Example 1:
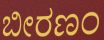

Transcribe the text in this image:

ಬೀರಣಂ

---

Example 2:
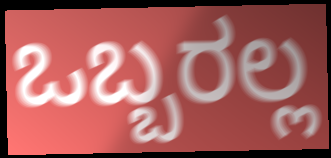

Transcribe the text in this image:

ಒಬ್ಬರಲ್ಲ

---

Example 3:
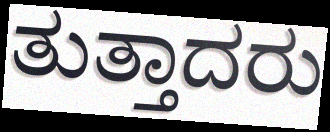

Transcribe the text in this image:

ತುತ್ತಾದರು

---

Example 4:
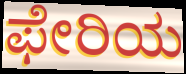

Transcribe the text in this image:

ಫೇರಿಯ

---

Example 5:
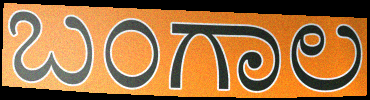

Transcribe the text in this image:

ಬಂಗಾಲ